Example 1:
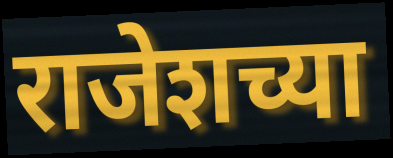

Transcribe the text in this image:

राजेशच्या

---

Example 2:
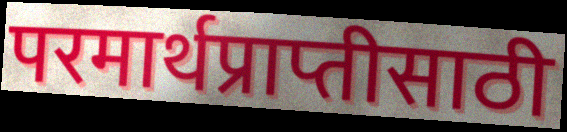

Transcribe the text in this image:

परमार्थप्राप्तीसाठी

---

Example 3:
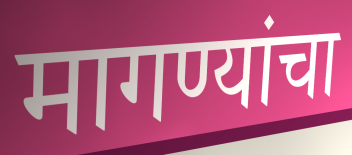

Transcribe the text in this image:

मागण्यांचा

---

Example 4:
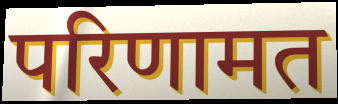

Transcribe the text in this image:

परिणामत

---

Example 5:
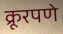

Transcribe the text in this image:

क्रूरपणे